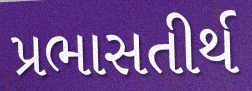
પ્રભાસતીર્થ